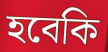
হবেকি